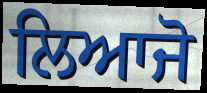
ਲਿਆਜੋ